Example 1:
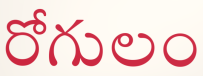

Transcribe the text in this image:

రోగులం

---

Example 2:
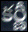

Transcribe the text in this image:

కర్ణీ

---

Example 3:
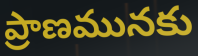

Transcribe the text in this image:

ప్రాణమునకు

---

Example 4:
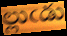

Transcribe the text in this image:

ల్లుఁడు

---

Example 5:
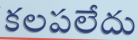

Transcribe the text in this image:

కలపలేదు